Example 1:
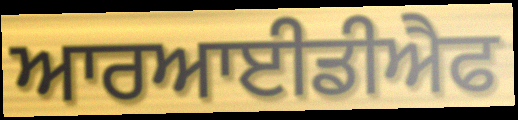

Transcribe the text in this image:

ਆਰਆਈਡੀਐਫ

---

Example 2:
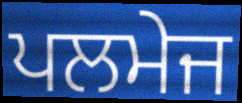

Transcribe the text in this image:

ਪਲਮੇਜ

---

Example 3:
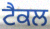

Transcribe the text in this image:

ਟੈਕਲ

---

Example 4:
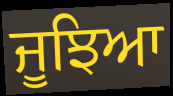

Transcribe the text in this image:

ਜੂਝਿਆ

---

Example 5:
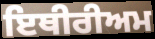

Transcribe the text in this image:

ਇਥੀਰੀਅਮ